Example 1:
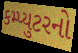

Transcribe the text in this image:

કમ્પ્યુટરનો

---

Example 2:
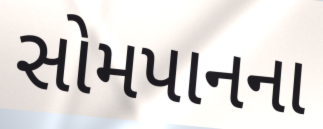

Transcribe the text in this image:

સોમપાનના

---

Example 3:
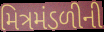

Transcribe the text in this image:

મિત્રમંડળીની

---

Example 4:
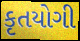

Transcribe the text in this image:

કૃતયોગી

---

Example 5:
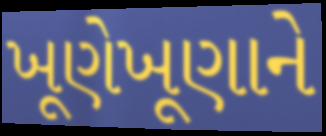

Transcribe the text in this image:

ખૂણેખૂણાને